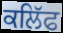
ਕਲਿੱਫ